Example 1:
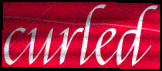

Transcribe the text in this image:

curled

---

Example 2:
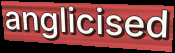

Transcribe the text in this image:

anglicised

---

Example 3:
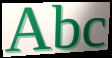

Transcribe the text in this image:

Abc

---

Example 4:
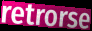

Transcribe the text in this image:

retrorse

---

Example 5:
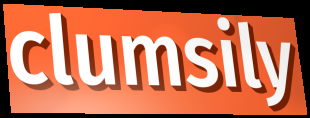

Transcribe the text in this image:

clumsily